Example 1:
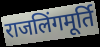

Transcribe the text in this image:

राजलिंगमूर्ति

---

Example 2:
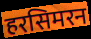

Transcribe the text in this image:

हरसिमरन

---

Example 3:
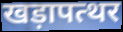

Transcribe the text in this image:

खड़ापत्थर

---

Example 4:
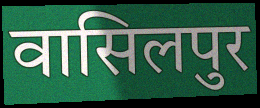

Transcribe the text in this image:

वासिलपुर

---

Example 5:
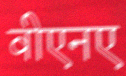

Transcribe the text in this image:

वीएनए